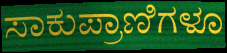
ಸಾಕುಪ್ರಾಣಿಗಳೂ